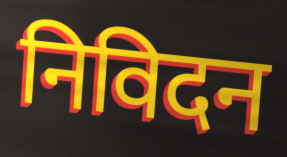
निविदन